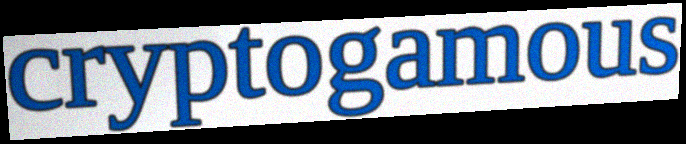
cryptogamous